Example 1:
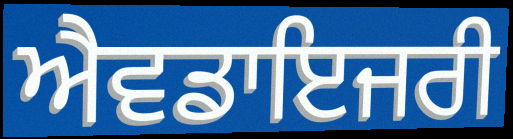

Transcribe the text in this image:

ਐਵਡਾਇਜਰੀ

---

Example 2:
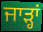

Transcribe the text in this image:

ਜਾੜ੍ਹਾਂ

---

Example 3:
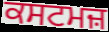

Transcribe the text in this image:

ਕਸਟਮਜ਼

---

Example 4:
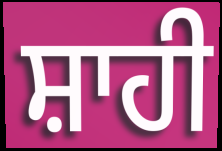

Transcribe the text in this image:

ਸ਼ਾਹੀ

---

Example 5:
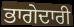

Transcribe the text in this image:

ਭਾਗੇਦਾਰੀ